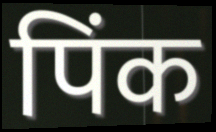
पिंक